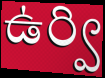
ఉర్వి